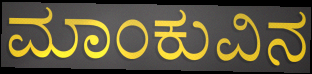
ಮಾಂಕುವಿನ